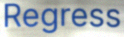
Regress